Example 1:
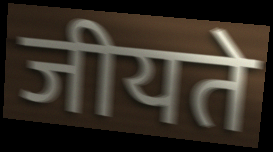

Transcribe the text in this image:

जीयते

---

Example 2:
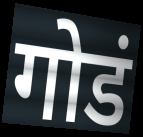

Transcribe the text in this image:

गोडं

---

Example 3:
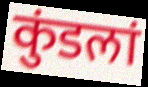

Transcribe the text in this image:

कुंडलां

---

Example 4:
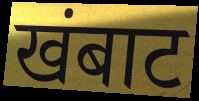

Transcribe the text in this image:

खंबाट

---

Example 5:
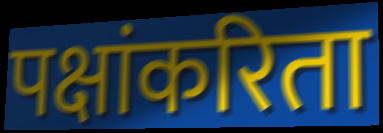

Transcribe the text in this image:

पक्षांकरिता